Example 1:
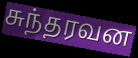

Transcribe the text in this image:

சுந்தரவன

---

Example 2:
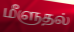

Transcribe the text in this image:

மீளுதல்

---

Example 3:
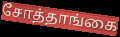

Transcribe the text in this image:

சோத்தாங்கை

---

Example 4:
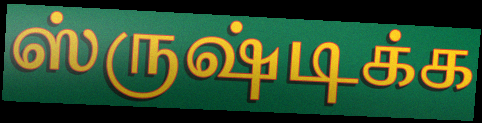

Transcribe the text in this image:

ஸ்ருஷ்டிக்க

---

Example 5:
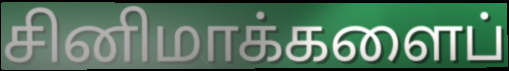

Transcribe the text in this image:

சினிமாக்களைப்